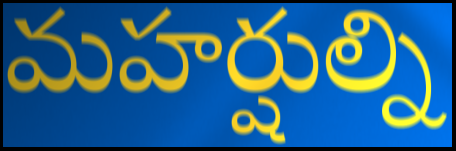
మహర్షుల్ని